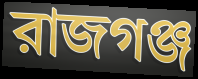
রাজগঞ্জ